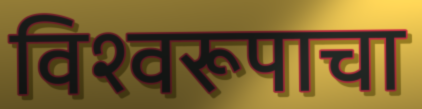
विश्वरूपाचा